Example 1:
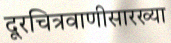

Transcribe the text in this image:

दूरचित्रवाणीसारख्या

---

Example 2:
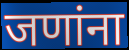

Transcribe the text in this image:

जणांना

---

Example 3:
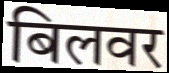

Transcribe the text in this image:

बिलवर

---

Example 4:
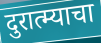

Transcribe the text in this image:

दुरात्म्याचा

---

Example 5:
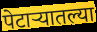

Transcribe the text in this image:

पेटाऱ्यातल्या